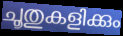
ചൂതുകളിക്കും